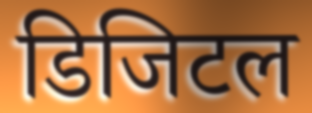
डिजिटल